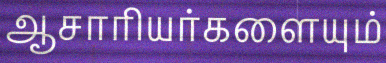
ஆசாரியர்களையும்